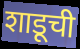
शाडूची